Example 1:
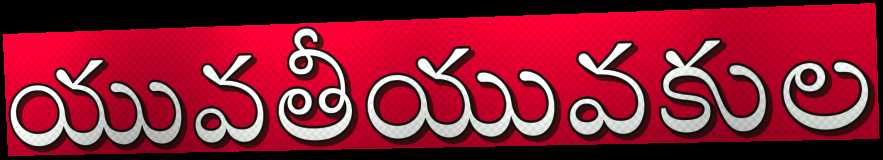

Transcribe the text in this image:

యువతీయువకుల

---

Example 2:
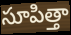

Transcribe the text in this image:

సూపిత్తా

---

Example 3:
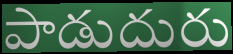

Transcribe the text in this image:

పాడుదురు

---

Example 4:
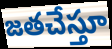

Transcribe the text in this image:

జతచేస్తూ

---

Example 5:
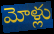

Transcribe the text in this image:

మోళ్లు